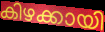
കിഴക്കായി